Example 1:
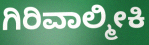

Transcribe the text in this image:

ಗಿರಿವಾಲ್ಮೀಕಿ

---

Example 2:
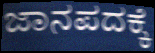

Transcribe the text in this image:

ಜಾನಪದಕ್ಕೆ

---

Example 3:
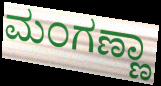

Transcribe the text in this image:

ಮಂಗಣ್ಣಾ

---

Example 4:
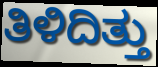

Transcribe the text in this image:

ತಿಳಿದಿತ್ತು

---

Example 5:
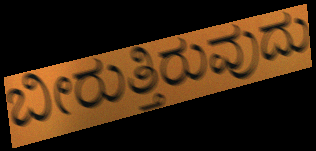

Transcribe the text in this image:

ಬೀರುತ್ತಿರುವುದು